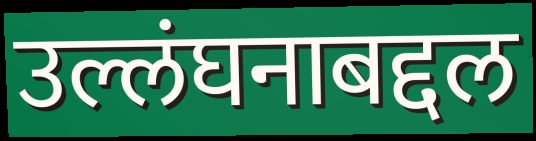
उल्लंघनाबद्दल